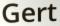
Gert